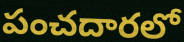
పంచదారలో